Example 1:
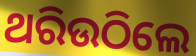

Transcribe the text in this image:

ଥରିଉଠିଲେ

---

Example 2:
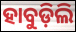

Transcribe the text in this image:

ହାବୁଡ଼ିଲି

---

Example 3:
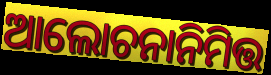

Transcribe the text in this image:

ଆଲୋଚନାନିମିତ୍ତ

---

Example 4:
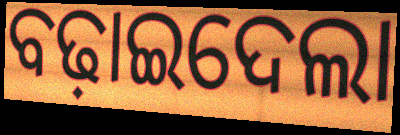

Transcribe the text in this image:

ବଢ଼ାଇଦେଲା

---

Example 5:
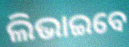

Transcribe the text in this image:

ଲିଭାଇବେ